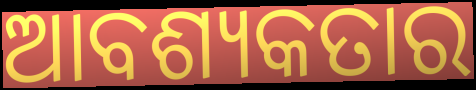
ଆବଶ୍ୟକତାର